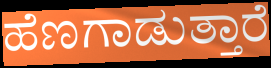
ಹೆಣಗಾಡುತ್ತಾರೆ